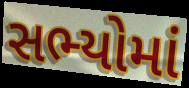
સભ્યોમાં